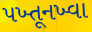
પખ્તૂનખ્વા